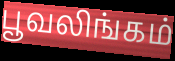
பூவலிங்கம்